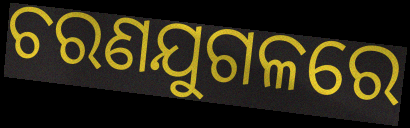
ଚରଣଯୁଗଳରେ